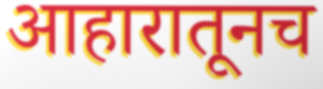
आहारातूनच